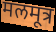
मलमूत्र